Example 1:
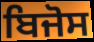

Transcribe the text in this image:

ਬਿਜੋਸ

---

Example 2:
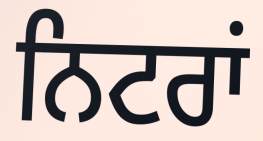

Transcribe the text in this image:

ਨਿਟਰਾਂ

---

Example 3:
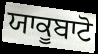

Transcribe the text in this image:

ਯਾਕੂਬਾਟੋ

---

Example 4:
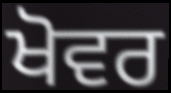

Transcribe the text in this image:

ਖੋਵਰ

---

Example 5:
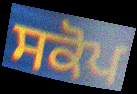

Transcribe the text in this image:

ਸਕੋਪ